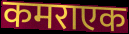
कमराएक